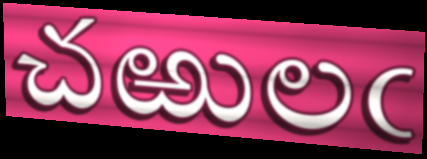
చఱులఁ